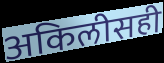
अकिलीसही